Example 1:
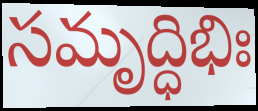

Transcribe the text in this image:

సమృద్ధిభిః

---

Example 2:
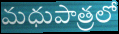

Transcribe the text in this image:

మధుపాత్రలో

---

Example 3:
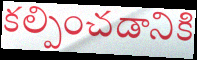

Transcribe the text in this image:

కల్పించడానికి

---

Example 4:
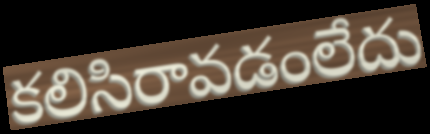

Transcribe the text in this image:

కలిసిరావడంలేదు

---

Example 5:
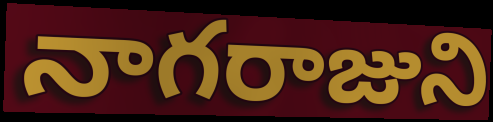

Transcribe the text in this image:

నాగరాజుని